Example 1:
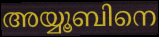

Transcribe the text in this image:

അയ്യൂബിനെ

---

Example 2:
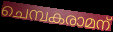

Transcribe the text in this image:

ചെമ്പകരാമന്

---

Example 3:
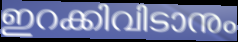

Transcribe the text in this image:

ഇറക്കിവിടാനും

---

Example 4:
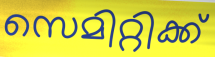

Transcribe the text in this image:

സെമിറ്റിക്ക്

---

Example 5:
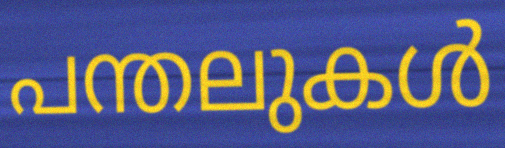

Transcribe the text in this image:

പന്തലുകൾ